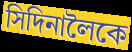
সিদিনালৈকে